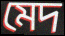
মেদ